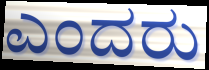
ಎಂದರು